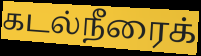
கடல்நீரைக்